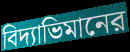
বিদ্যাভিমানের